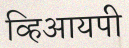
व्हिआयपी